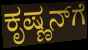
ಕೃಷ್ಣನ್‌ಗೆ